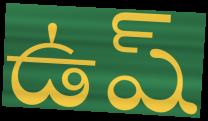
ఉష్